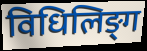
विधिलिङ्ग